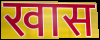
खास